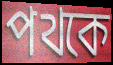
পথকে